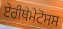
ਏਰੀਥੇਮੇਟੋਸਸ